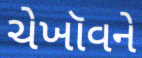
ચેખૉવને